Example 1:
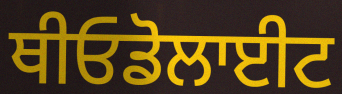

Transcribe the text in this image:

ਥੀਓਡੋਲਾਈਟ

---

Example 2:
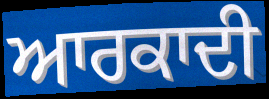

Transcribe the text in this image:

ਆਰਕਾਦੀ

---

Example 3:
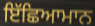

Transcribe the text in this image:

ਇੱਛਿਆਮਾਨ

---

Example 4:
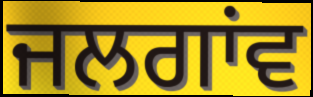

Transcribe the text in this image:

ਜਲਗਾਂਵ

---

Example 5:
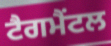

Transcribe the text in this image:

ਟੈਗਮੈਂਟਲ